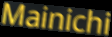
Mainichi